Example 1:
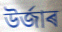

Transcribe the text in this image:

উৰ্জাৰ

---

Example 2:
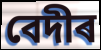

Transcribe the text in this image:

বেদীৰ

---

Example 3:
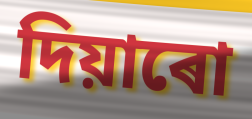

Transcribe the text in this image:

দিয়াৰো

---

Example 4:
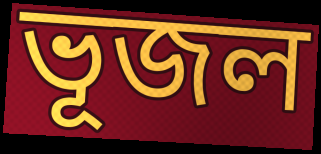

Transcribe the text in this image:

ভূজল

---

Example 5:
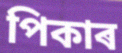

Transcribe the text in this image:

পিকাৰ